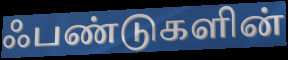
ஃபண்டுகளின்